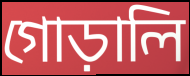
গোড়ালি